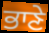
ਭਾਣੇ